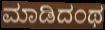
ಮಾಡಿದಂಥ